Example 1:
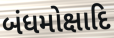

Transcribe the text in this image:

બંધમોક્ષાદિ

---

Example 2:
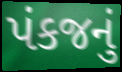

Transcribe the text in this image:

પંકજનું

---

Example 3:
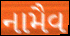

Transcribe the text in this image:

નામૈવ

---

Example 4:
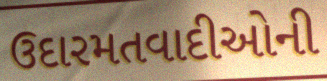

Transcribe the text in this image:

ઉદારમતવાદીઓની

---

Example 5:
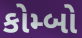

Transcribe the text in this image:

કોમ્બો